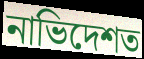
নাভিদেশত